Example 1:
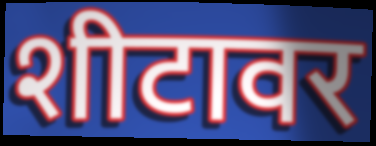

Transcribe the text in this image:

शीटावर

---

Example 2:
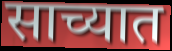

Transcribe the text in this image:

साच्यात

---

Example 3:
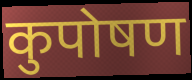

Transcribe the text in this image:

कुपोषण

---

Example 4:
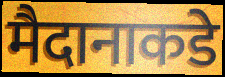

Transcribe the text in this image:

मैदानाकडे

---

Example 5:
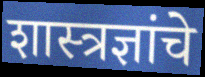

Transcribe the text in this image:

शास्त्रज्ञांचे